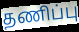
தணிப்பு